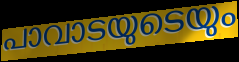
പാവാടയുടെയും